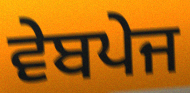
ਵੇਬਪੇਜ